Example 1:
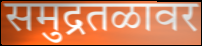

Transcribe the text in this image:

समुद्रतळावर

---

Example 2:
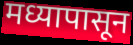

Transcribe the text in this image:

मध्यापासून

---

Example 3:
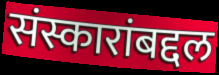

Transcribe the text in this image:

संस्कारांबद्दल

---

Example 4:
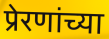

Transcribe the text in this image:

प्रेरणांच्या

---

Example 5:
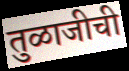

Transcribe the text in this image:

तुळाजीची